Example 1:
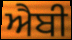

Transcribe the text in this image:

ਐਬੀ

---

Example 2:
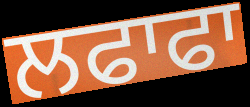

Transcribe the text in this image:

ਲਫਾਫਾ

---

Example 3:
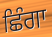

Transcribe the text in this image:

ਛਿੰਗਾ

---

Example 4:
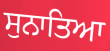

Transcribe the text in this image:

ਸੁਨਾਤਿਆ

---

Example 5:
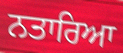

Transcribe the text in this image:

ਨਤਾਰਿਆ